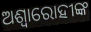
ଅଶ୍ୱାରୋହୀଙ୍କ